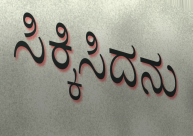
ಸಿಕ್ಕಿಸಿದನು